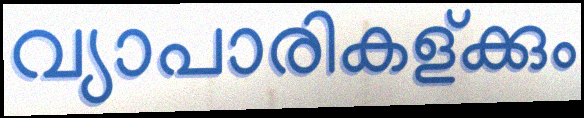
വ്യാപാരികള്ക്കും